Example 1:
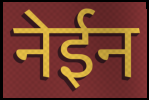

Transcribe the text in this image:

नेईन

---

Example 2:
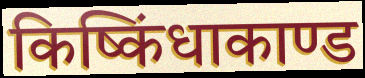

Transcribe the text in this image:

किष्किंधाकाण्ड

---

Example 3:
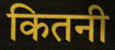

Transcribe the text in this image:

कितनी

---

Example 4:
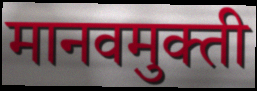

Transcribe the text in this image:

मानवमुक्ती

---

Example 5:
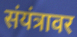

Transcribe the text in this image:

संयंत्रावर